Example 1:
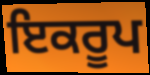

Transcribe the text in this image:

ਇਕਰੂਪ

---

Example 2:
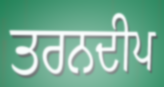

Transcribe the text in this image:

ਤਰਨਦੀਪ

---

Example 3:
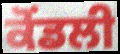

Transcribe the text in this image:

ਕੋਂਡਲੀ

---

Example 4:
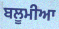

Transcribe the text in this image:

ਬਲੂਮੀਆ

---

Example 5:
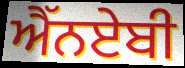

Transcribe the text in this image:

ਐੱਨਏਬੀ